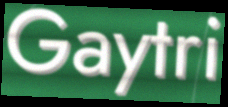
Gaytri